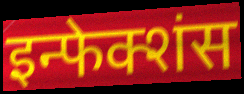
इन्फेक्शंस